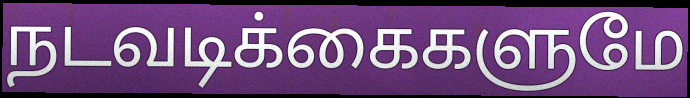
நடவடிக்கைகளுமே